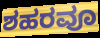
ಶಹರವೂ